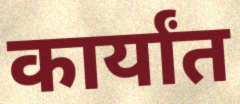
कार्यांत